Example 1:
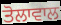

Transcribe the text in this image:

ਤੋਲਾਵਾਲ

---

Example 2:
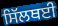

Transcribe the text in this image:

ਸਿੱਲਥਈ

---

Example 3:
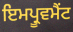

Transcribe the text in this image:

ਇਮਪ੍ਰੂਵਮੈਂਟ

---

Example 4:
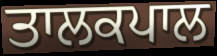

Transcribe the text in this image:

ਤਾਲਕਪਾਲ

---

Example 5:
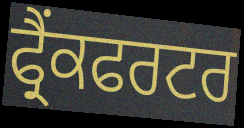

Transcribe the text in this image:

ਫ੍ਰੈਂਕਫਰਟਰ